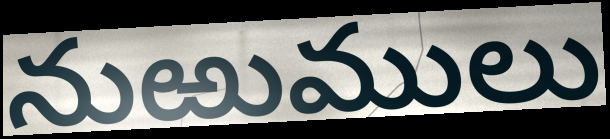
నుఱుములు